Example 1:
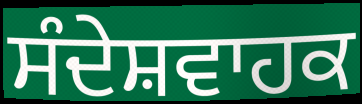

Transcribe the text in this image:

ਸੰਦੇਸ਼ਵਾਹਕ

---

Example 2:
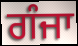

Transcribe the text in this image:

ਗੰਜਾ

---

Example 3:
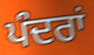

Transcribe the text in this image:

ਪੰਦਰਾਂ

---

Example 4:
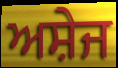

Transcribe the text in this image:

ਅਸ਼ੇਜ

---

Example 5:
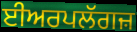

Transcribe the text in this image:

ਈਅਰਪਲੱਗਜ਼